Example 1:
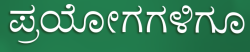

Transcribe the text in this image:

ಪ್ರಯೋಗಗಳಿಗೂ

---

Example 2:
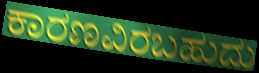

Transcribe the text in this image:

ಕಾರಣವಿರಬಹುದು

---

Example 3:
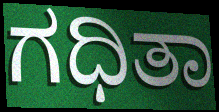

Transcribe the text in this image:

ಗಧಿತಾ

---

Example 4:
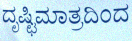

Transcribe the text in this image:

ದೃಷ್ಟಿಮಾತ್ರದಿಂದ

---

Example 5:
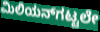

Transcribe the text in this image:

ಮಿಲಿಯನ್‌ಗಟ್ಟಲೇ